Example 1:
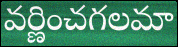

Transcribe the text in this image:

వర్ణించగలమా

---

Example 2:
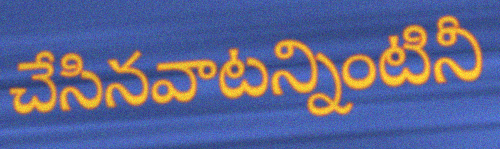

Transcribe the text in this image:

చేసినవాటన్నింటినీ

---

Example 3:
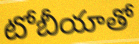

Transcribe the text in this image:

టోబీయాతో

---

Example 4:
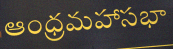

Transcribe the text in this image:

ఆంధ్రమహాసభా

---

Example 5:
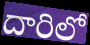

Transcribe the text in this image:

దారిలో